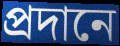
প্রদানে